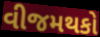
વીજમથકો